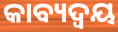
କାବ୍ୟଦ୍ୱୟ